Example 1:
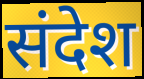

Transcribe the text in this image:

संदेश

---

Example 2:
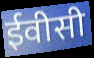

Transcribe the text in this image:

ईवीसी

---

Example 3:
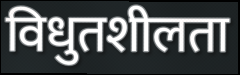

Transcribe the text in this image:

विधुतशीलता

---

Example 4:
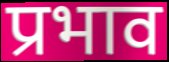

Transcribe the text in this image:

प्रभाव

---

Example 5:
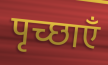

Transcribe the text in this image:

पृच्छाएँ